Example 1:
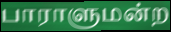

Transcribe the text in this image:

பாராளுமன்ற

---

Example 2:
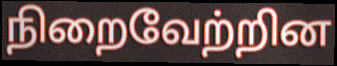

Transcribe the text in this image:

நிறைவேற்றின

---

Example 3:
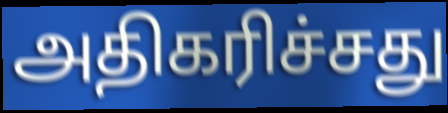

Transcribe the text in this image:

அதிகரிச்சது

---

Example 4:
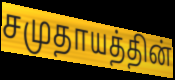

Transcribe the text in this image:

சமுதாயத்தின்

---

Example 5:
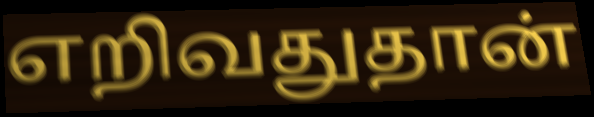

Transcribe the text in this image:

எறிவதுதான்